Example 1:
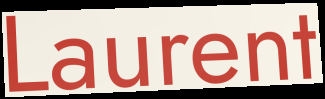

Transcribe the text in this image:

Laurent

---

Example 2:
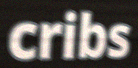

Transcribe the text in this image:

cribs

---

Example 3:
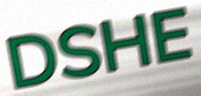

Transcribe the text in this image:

DSHE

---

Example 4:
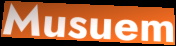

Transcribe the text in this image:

Musuem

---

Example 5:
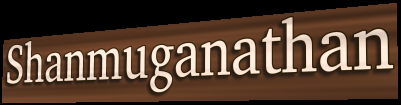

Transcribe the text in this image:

Shanmuganathan